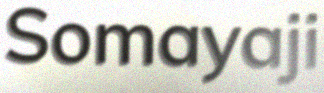
Somayaji